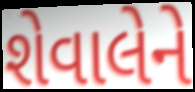
શેવાલેને